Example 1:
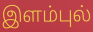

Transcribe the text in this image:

இளம்புல்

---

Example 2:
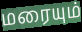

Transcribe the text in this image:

மரையும்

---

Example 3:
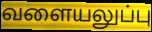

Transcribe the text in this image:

வளையலுப்பு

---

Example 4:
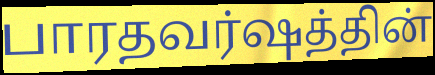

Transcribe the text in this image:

பாரதவர்ஷத்தின்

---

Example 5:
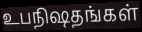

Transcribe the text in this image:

உபநிஷதங்கள்